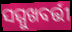
ସମ୍ମୁଖବର୍ତ୍ତୀ